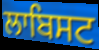
ਲਾਬਿਸਟ